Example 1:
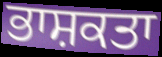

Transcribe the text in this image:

ਭਾਸ਼ਕਤਾ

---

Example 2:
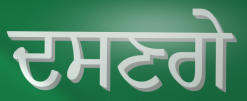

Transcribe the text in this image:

ਦਸਣਗੇ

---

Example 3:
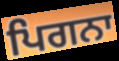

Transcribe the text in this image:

ਪਿਗਨਾ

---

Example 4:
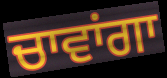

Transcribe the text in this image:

ਚਾਵਾਂਗਾ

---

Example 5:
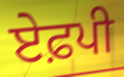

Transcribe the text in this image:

ਏਫ਼ਪੀ